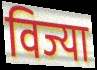
विज्या